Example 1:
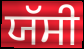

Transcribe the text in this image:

ਯੱਸੀ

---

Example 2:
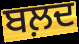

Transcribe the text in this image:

ਬਲ਼ਦ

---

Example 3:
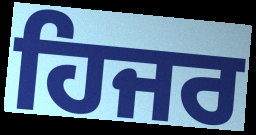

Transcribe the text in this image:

ਹਿਜਰ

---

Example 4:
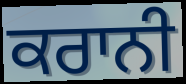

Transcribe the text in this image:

ਕਰਾਨੀ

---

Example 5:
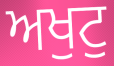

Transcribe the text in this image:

ਅਖੁਟੁ